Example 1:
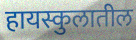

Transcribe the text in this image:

हायस्कुलातील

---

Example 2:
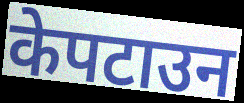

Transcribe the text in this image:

केपटाउन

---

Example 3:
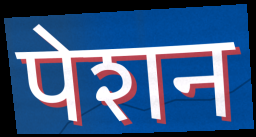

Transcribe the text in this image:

पेशन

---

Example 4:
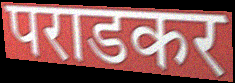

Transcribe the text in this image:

पराडकर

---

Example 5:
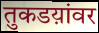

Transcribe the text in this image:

तुकडय़ांवर